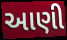
આણી